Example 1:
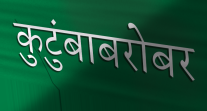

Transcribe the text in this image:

कुटुंबाबरोबर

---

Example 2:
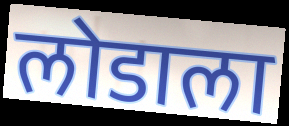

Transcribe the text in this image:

लोडाला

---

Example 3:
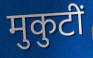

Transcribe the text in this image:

मुकुटीं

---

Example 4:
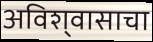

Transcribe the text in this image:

अविश्वासाचा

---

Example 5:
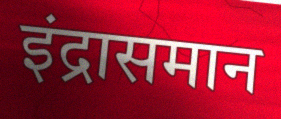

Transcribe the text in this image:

इंद्रासमान